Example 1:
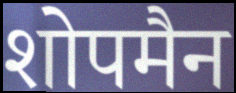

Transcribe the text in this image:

शोपमैन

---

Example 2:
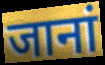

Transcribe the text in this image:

जानां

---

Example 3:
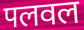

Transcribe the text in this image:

पलवल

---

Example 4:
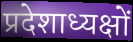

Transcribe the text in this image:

प्रदेशाध्यक्षों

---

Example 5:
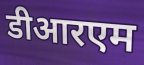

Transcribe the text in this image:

डीआरएम